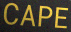
CAPE